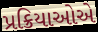
પ્રક્રિયાઓએ